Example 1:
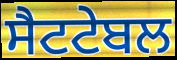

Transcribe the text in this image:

ਸੈਟਟੇਬਲ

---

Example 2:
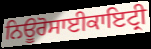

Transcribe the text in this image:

ਨਿਊਰੋਸਾਈਕਾਇਟ੍ਰੀ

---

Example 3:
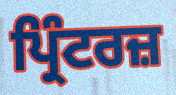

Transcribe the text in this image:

ਪ੍ਰਿੰਟਰਜ਼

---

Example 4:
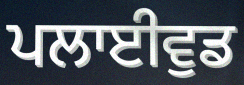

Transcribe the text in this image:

ਪਲਾਈਵੁਡ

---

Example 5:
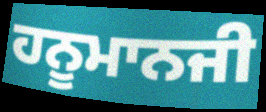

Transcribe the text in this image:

ਹਨੂਮਾਨਜੀ